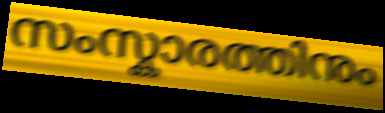
സംസ്കാരത്തിനും